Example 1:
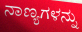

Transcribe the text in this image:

ನಾಣ್ಯಗಳನ್ನು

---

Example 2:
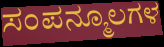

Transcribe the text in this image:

ಸಂಪನ್ಮೂಲಗಳ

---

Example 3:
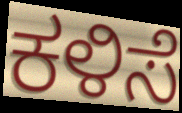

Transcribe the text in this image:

ಕಳಿಸೆ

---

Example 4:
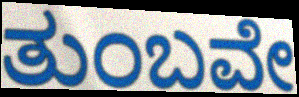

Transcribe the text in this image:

ತುಂಬವೇ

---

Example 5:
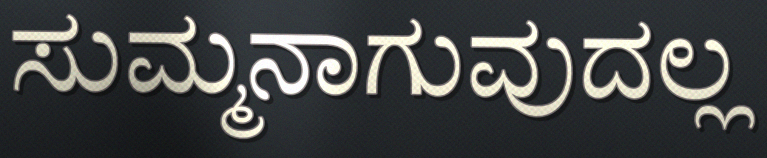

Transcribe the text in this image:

ಸುಮ್ಮನಾಗುವುದಲ್ಲ